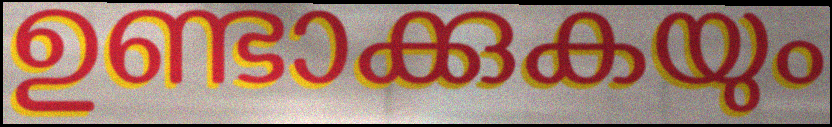
ഉണ്ടാക്കുകയും